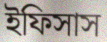
ইফিসাস